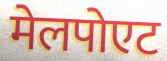
मेलपोएट